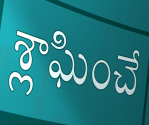
శ్లాఘించే